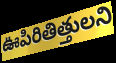
ఊపిరితిత్తులని